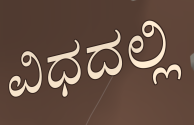
ವಿಧದಲ್ಲಿ